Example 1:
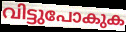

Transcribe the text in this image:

വിട്ടുപോകുക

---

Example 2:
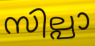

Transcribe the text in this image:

സില്പാ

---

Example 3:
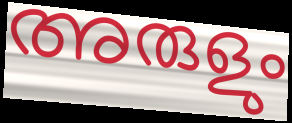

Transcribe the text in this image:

അരുളും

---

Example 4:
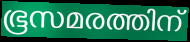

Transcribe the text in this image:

ഭൂസമരത്തിന്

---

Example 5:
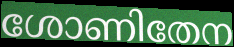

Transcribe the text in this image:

ശോണിതേന